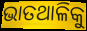
ଭାତଥାଳିକୁ